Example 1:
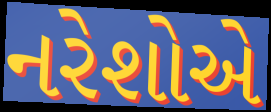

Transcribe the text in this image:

નરેશોએ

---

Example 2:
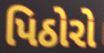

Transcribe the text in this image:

પિઠોરો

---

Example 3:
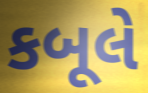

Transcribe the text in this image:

કબૂલે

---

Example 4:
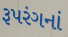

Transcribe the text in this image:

રૂપરંગનાં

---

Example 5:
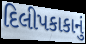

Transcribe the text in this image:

દિલીપકાકાનું